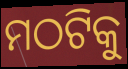
ମଠଟିକୁ